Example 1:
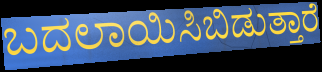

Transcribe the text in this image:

ಬದಲಾಯಿಸಿಬಿಡುತ್ತಾರೆ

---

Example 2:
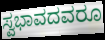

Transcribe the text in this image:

ಸ್ವಭಾವದವರೂ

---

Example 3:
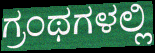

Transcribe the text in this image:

ಗ್ರಂಥಗಳಲ್ಲಿ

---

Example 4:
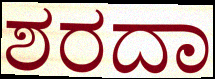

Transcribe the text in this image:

ಶರದಾ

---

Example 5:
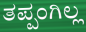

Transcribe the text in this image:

ತಪ್ಪಂಗಿಲ್ಲ